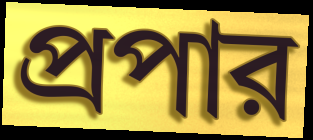
প্রপার